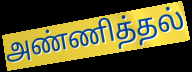
அண்ணித்தல்